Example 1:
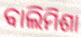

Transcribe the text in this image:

ବାଲିମିଶା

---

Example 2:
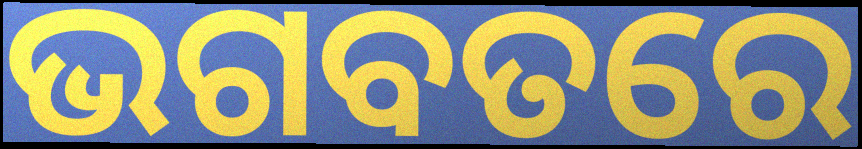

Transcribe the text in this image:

ଭଗବତରେ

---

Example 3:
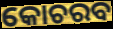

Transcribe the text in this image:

କୋଚରବ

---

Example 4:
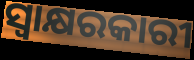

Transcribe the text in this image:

ସ୍ୱାକ୍ଷରକାରୀ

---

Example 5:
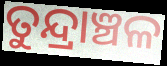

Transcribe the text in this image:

ତୁନ୍ଦ୍ରାଞ୍ଚଳ